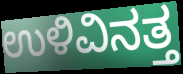
ಉಳಿವಿನತ್ತ